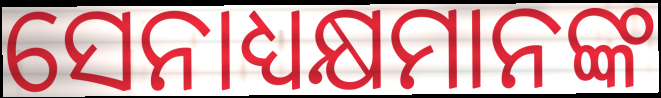
ସେନାଧ୍ୟକ୍ଷମାନଙ୍କ